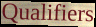
Qualifiers